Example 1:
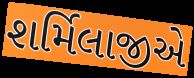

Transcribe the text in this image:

શર્મિલાજીએ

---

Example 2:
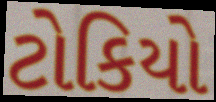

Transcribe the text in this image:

ટોકિયો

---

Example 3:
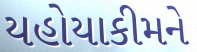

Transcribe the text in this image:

યહોયાકીમને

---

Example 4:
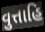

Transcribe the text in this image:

વુત્તાહિ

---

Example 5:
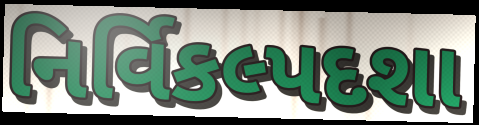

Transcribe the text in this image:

નિર્વિકલ્પદશા